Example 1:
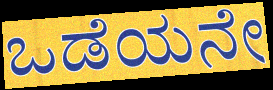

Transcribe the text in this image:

ಒಡೆಯನೇ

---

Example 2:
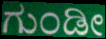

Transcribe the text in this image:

ಗುಂಡೀ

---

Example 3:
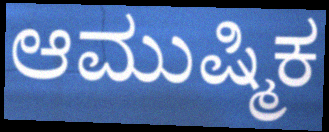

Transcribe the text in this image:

ಆಮುಷ್ಮಿಕ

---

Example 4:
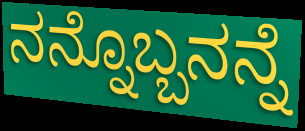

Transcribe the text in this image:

ನನ್ನೊಬ್ಬನನ್ನೆ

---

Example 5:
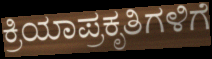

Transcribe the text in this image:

ಕ್ರಿಯಾಪ್ರಕೃತಿಗಳಿಗೆ